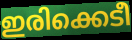
ഇരിക്കെടീ